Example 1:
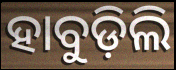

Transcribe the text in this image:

ହାବୁଡ଼ିଲି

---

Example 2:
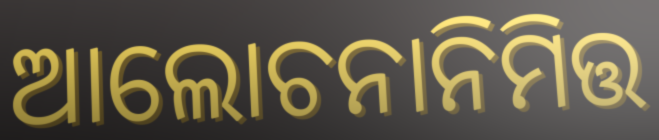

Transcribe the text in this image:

ଆଲୋଚନାନିମିତ୍ତ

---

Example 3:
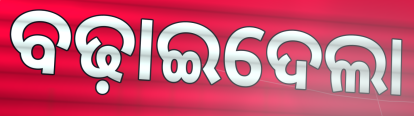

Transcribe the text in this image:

ବଢ଼ାଇଦେଲା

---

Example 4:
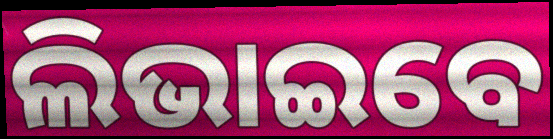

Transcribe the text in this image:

ଲିଭାଇବେ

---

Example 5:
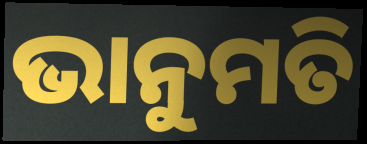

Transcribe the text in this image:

ଭାନୁମତି